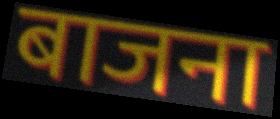
बाजना